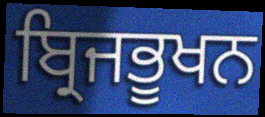
ਬ੍ਰਿਜਭੂਖਨ